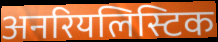
अनरियलिस्टिक